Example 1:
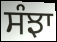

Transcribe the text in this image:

ਸੰਝਾ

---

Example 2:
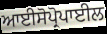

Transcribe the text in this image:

ਆਈਸੋਪ੍ਰੋਪਾਈਲ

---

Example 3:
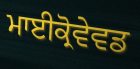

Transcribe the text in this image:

ਮਾਈਕ੍ਰੋਵੇਵਡ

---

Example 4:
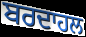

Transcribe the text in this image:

ਬਰਦਾਹਲ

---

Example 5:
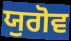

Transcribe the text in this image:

ਯੁਗੋਵ